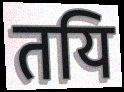
तयि